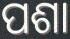
ପଶା